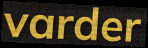
varder